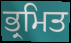
ਭ੍ਰਮਿਤ